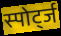
स्पोर्ट्ज